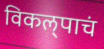
विकल्पाचं